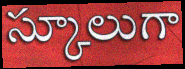
స్కూలుగా